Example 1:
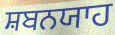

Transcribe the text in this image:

ਸ਼ਬਨਯਾਹ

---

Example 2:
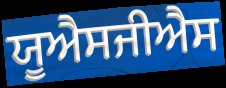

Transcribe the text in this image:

ਯੂਐਸਜੀਐਸ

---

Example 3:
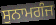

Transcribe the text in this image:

ਸੁਨਾਮਗੰਜ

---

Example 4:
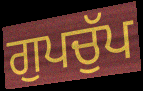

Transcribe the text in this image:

ਗੁਪਚੁੱਪ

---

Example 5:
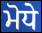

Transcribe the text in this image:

ਮੋਧੇ